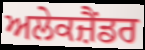
ਅਲੇਕਜ਼ੈਂਡਰ